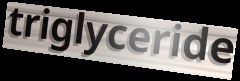
triglyceride